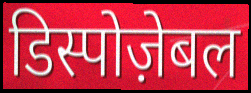
डिस्पोज़ेबल